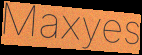
Maxyes